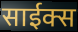
साईक्स